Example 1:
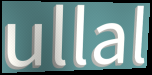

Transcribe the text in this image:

ullal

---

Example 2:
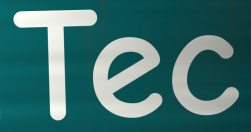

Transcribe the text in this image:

Tec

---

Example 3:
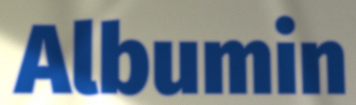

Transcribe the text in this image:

Albumin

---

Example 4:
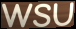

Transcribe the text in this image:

WSU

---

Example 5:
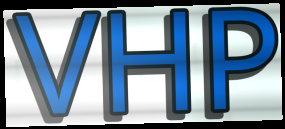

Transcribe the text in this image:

VHP